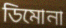
ডিমোনা